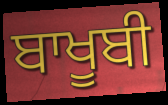
ਬਾਖੂਬੀ